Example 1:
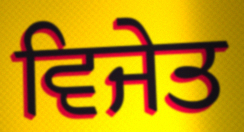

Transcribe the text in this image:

ਵਿਜੇਤ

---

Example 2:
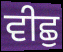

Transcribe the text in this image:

ਵੀਛੁ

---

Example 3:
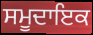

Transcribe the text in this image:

ਸਮੂਦਾਇਕ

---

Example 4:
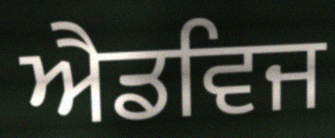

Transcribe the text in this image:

ਐਡਵਿਜ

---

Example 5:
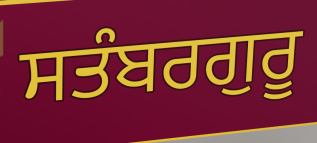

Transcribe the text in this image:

ਸਤੰਬਰਗੁਰੂ